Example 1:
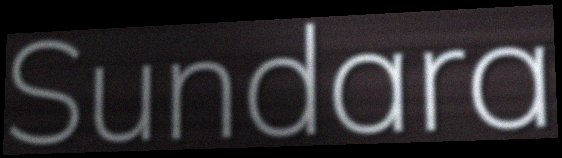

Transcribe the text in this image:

Sundara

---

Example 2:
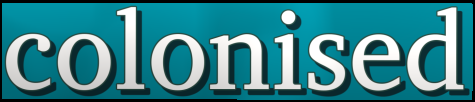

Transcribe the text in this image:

colonised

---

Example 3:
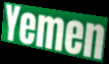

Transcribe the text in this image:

Yemen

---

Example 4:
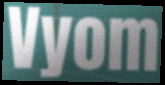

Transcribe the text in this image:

Vyom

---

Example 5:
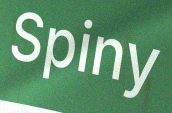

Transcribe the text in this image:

Spiny